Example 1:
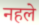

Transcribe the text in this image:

नहले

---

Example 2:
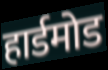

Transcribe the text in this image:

हार्डमोड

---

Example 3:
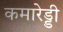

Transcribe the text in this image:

कमारेड्डी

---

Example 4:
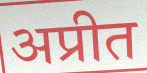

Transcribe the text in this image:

अप्रीत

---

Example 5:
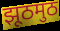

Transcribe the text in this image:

झूठमुठ